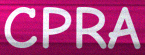
CPRA